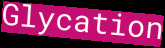
Glycation